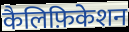
कैलिफ़िकेशन